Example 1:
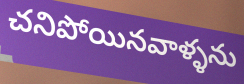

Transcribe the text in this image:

చనిపోయినవాళ్ళను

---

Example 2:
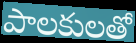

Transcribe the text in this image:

పాలకులతో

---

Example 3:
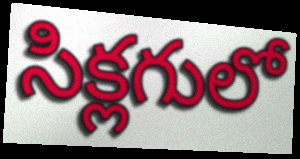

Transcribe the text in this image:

సిక్లగులో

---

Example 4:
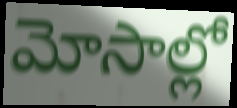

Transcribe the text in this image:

మోసాల్లో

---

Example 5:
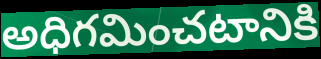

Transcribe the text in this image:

అధిగమించటానికి